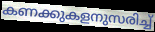
കണക്കുകളനുസരിച്ച്